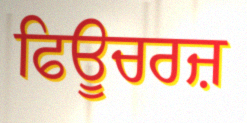
ਫਿਊਚਰਜ਼